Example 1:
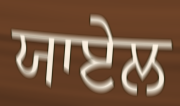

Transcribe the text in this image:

ਯਾਏਲ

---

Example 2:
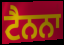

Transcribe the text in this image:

ਟੈਨਨਾ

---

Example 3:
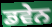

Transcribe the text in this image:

ਡਵੇਨ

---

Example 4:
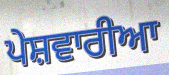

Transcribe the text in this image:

ਪੇਸ਼ਵਾਰੀਆ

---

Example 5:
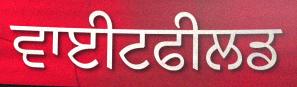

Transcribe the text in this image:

ਵਾਈਟਫੀਲਡ